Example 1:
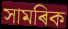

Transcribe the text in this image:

সামৰিক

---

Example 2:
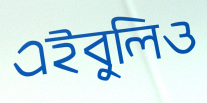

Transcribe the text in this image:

এইবুলিও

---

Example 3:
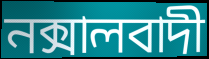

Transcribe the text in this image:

নক্সালবাদী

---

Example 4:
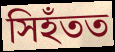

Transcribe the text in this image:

সিহঁতত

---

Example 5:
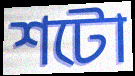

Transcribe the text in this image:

শটো